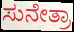
ಸುನೇತ್ರಾ